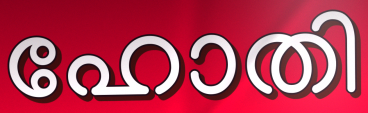
ഹോതി